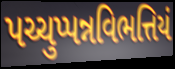
પચ્ચુપ્પન્નવિભત્તિયં